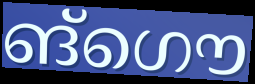
ങ്ഗൌ